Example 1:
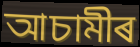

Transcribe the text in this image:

আচামীৰ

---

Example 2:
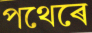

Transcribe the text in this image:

পথেৰে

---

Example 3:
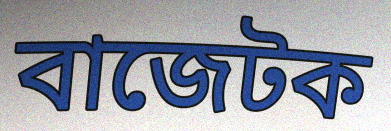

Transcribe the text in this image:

বাজেটক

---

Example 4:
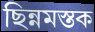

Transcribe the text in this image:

ছিন্নমস্তক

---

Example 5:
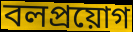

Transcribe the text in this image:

বলপ্ৰয়োগ